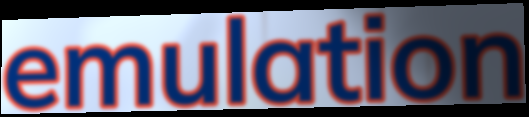
emulation